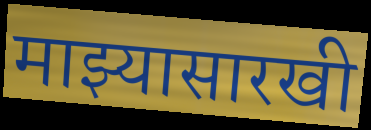
माझ्यासारखी